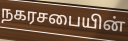
நகரசபையின்